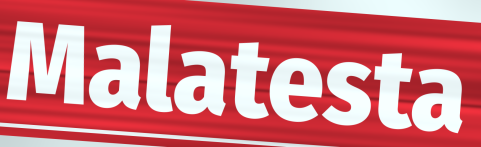
Malatesta